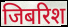
जिबरिश